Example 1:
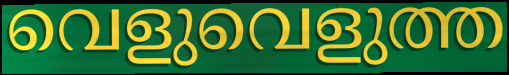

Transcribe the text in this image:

വെളുവെളുത്ത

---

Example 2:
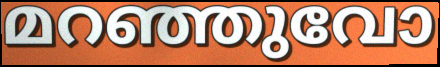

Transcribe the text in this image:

മറഞ്ഞുവോ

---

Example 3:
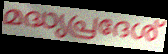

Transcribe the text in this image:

മദ്ധ്യപ്രദേശ്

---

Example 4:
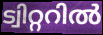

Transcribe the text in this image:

ട്വിറ്ററിൽ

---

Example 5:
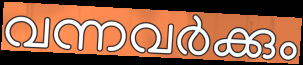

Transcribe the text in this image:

വന്നവർക്കും